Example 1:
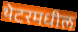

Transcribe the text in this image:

थेटरमधील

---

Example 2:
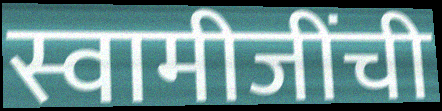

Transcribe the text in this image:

स्वामीजींची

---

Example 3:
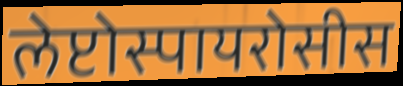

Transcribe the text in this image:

लेप्टोस्पायरोसीस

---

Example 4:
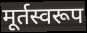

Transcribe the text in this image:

मूर्तस्वरूप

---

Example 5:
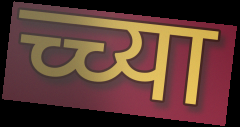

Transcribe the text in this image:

च्च्या